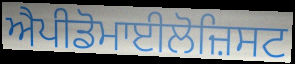
ਐਪੀਡੋਮਾਈਲੋਜ਼ਿਸਟ